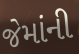
જેમાંની